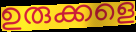
ഉരുക്കളെ